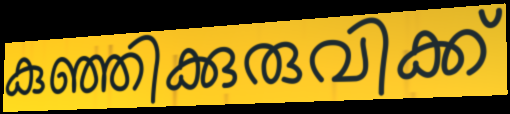
കുഞ്ഞിക്കുരുവിക്ക്